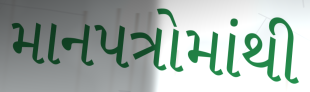
માનપત્રોમાંથી